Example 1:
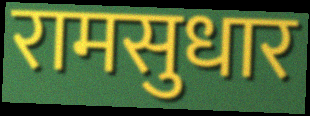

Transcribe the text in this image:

रामसुधार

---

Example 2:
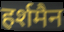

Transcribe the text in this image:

हर्शमैन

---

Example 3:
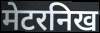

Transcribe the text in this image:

मेटरनिख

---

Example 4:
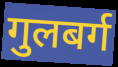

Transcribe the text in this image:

गुलबर्ग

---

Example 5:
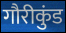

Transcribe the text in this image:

गौरीकुंड